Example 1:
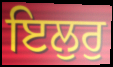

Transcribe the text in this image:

ਇਲੁਰੁ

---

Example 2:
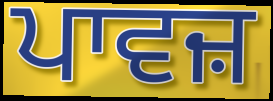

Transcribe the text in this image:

ਪਾਵਜ਼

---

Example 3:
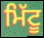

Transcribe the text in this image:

ਮਿੱਟੂ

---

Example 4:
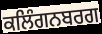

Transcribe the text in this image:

ਕਲਿੰਗਨਬਰਗ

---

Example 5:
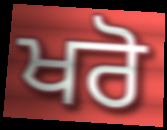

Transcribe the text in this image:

ਖਰੋ